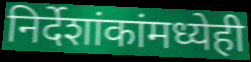
निर्देशांकांमध्येही